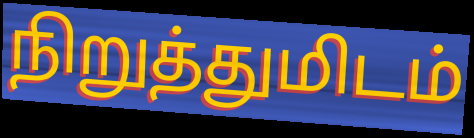
நிறுத்துமிடம்